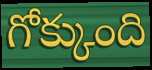
గోక్కుంది